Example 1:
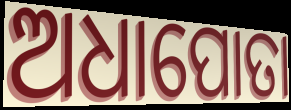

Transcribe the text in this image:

ଅଧାପୋତା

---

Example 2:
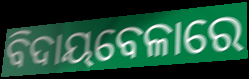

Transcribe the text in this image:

ବିଦାୟବେଳାରେ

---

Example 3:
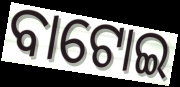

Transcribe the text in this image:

ବାଟୋଇ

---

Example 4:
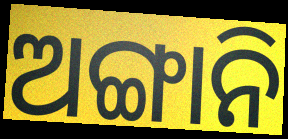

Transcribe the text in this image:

ଅଙ୍ଗାନି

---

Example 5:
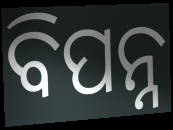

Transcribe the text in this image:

ବିପନ୍ନ